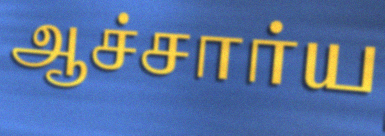
ஆச்சார்ய